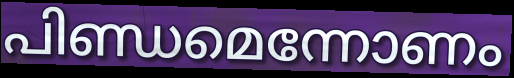
പിണ്ഡമെന്നോണം